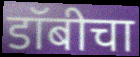
डॉबीचा